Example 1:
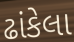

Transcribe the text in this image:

ઢાંકેલા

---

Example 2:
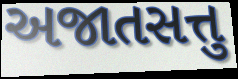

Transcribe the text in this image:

અજાતસત્તુ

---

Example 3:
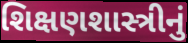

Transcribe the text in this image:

શિક્ષણશાસ્ત્રીનું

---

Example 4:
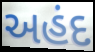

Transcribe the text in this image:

અહંદ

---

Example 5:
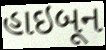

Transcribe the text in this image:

હાઇબૂન